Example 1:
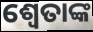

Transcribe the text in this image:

ଶ୍ୱେତାଙ୍କ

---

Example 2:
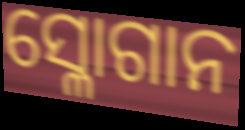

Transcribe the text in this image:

ସ୍ଳୋଗାନ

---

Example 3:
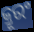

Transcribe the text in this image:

କ୍ରୂରଂ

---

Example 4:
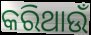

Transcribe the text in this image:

କରିଥାଉଁ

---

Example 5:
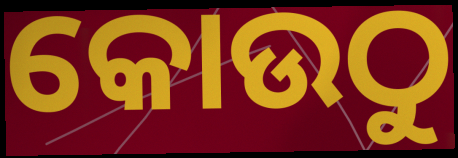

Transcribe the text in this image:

କୋଉଠୁ